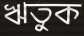
ঋতুক